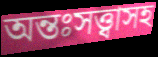
অন্তঃসত্ত্বাসহ